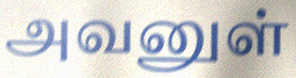
அவனுள்